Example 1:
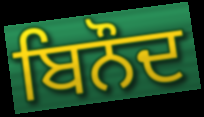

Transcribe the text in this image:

ਬਿਨੌਦ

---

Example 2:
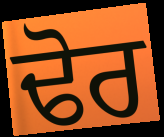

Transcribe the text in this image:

ਢੋਰ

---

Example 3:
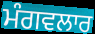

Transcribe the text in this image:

ਮੰਗਵਲਾਰ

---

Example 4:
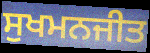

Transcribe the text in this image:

ਸੁਖਮਨਜੀਤ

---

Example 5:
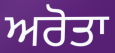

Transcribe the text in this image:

ਅਰੋਤਾ